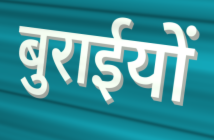
बुराईयों